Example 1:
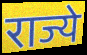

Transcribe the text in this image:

राज्ये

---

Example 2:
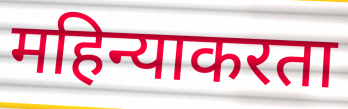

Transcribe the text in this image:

महिन्याकरता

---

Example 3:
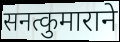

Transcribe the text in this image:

सनत्कुमाराने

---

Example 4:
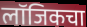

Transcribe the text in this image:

लॉजिकचा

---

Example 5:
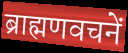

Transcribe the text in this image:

ब्राह्मणवचनें